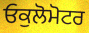
ਓਕੁਲੋਮੋਟਰ